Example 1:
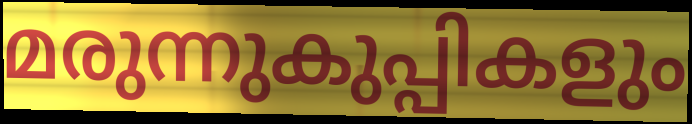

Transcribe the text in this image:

മരുന്നുകുപ്പികളും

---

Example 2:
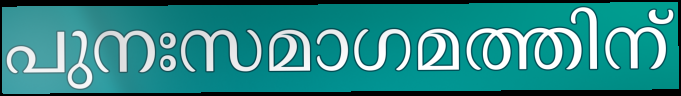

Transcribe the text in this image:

പുനഃസമാഗമത്തിന്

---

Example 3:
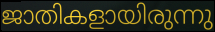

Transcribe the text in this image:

ജാതികളായിരുന്നു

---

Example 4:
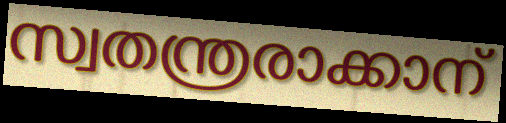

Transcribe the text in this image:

സ്വതന്ത്രരാക്കാന്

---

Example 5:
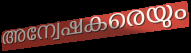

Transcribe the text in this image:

അന്വേഷകരെയും